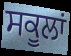
ਸਕੂਲਾਂ